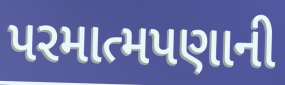
પરમાત્મપણાની